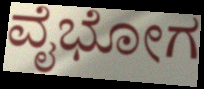
ವೈಭೋಗ